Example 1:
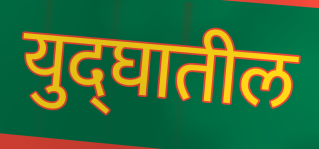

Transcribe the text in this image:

युद्घातील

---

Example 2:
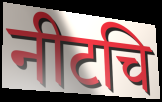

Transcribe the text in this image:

नीटचि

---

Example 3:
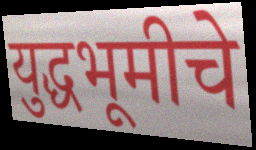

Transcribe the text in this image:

युद्धभूमीचे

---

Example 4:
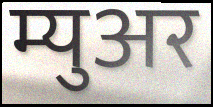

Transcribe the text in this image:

म्युअर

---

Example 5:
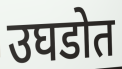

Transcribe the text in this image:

उघडोत